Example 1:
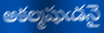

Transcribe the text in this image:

అకల్మషుఁడనై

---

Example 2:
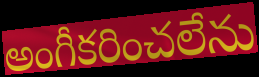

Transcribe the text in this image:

అంగీకరించలేను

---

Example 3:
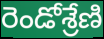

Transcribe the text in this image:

రెండోశ్రేణి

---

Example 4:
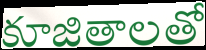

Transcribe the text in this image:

కూజితాలతో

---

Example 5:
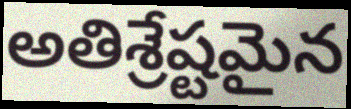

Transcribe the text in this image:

అతిశ్రేష్టమైన